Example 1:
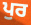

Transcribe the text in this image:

ਪੁਰ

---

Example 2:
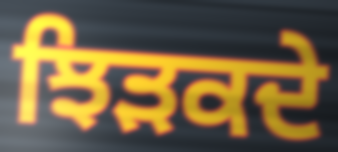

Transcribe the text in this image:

ਝਿੜਕਦੇ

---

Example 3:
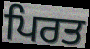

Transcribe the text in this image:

ਪਿਰਤ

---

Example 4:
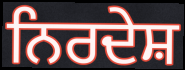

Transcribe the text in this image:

ਨਿਰਦੇਸ਼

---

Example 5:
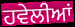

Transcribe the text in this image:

ਹਵੇਲੀਆਂ